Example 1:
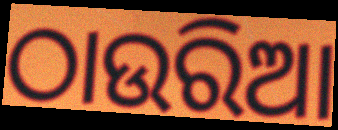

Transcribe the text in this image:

ଠାଉରିଆ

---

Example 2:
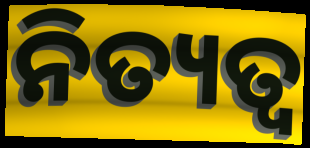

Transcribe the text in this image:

ନିତ୍ୟତ୍ୱ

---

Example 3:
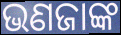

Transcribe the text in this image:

ଭଣଜାଙ୍କ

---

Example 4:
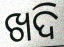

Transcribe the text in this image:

ଖଦି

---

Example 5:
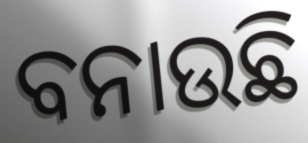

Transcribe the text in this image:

ବନାଉଛି